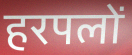
हरपलों